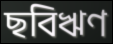
ছবিঋণ